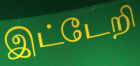
இட்டேறி